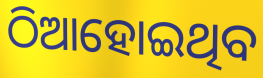
ଠିଆହୋଇଥିବ